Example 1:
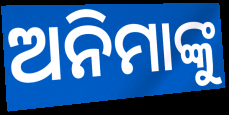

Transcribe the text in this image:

ଅନିମାଙ୍କୁ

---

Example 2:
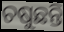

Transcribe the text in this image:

ଚଷୁଛନ୍ତି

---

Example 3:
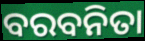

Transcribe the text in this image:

ବରବନିତା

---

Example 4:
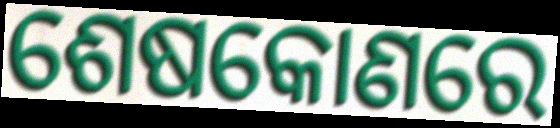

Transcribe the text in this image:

ଶେଷକୋଣରେ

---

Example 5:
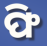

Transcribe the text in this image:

ଫି